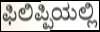
ಫಿಲಿಪ್ಪಿಯಲ್ಲಿ